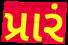
પ્રારં